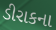
ડીરાકના